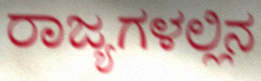
ರಾಜ್ಯಗಳಲ್ಲಿನ